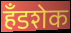
हँडशेक